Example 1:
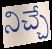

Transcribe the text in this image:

నిచ్చే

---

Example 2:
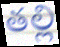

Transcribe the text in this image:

తల్లి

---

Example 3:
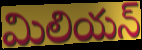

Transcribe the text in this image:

మిలియన్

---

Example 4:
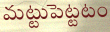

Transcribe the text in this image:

మట్టుపెట్టటం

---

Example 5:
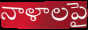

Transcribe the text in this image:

నాళాలపై